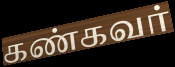
கண்கவர்